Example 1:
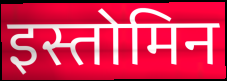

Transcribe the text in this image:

इस्तोमिन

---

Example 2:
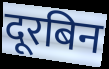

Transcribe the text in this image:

दूरबिन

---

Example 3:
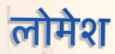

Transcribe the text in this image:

लोमेश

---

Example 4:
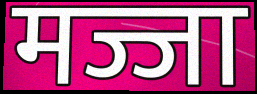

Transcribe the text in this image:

मज्जा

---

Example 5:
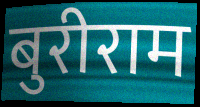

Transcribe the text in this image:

बुरीराम